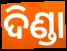
ଦିଣ୍ଡା